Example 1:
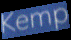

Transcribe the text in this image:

Kemp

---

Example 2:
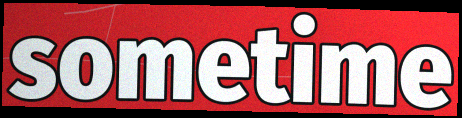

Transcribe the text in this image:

sometime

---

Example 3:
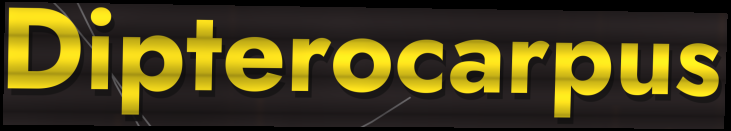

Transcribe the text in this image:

Dipterocarpus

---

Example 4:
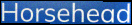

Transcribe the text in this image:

Horsehead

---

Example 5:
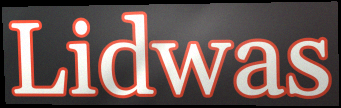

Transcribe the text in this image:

Lidwas